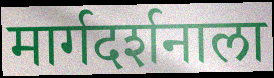
मार्गदर्शनाला